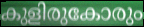
കുളിരുകോരും